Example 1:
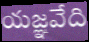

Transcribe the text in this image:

యజ్ఞవేది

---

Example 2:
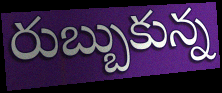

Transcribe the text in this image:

రుబ్బుకున్న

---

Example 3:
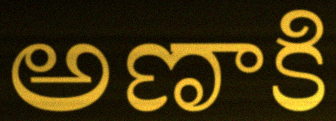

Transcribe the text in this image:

అణాకి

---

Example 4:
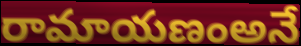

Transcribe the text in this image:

రామాయణంఅనే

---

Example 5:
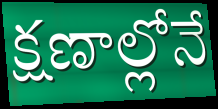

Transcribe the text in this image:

క్షణాల్లోనే